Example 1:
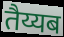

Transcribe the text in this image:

तैय्यब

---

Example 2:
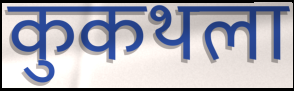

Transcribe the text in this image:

कुकथला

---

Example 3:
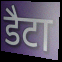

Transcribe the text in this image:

डैटा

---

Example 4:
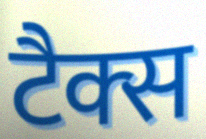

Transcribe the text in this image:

टैक्‍स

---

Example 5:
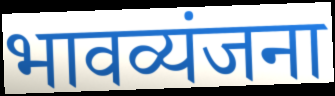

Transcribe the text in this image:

भावव्यंजना